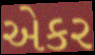
એકર